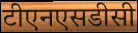
टीएनएसडीसी